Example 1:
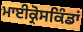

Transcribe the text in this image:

ਮਾਈਕ੍ਰੋਸਕਿੰਡਾਂ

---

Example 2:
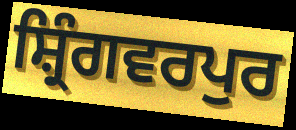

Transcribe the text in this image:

ਸ਼੍ਰਿੰਗਵਰਪੁਰ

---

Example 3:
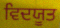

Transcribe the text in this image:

ਵਿਦਯੂਤ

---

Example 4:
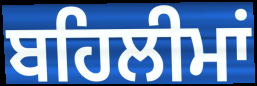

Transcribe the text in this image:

ਬਹਿਲੀਮਾਂ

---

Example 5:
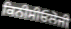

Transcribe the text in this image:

ਕਿਨੀਸੀਓਲੋਜੀ